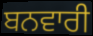
ਬਨਵਾਰੀ